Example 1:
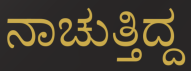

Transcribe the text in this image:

ನಾಚುತ್ತಿದ್ದ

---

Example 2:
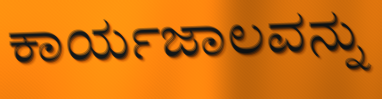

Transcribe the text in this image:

ಕಾರ್ಯಜಾಲವನ್ನು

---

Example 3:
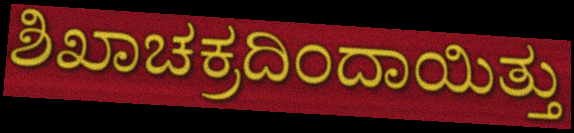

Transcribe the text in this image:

ಶಿಖಾಚಕ್ರದಿಂದಾಯಿತ್ತು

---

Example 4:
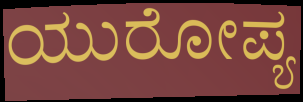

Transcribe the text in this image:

ಯುರೋಪ್ಯ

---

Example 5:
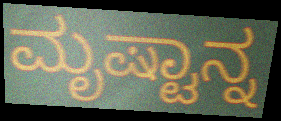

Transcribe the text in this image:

ಮೃಷ್ಟಾನ್ನ